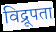
विद्रूपता